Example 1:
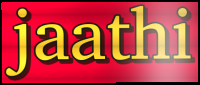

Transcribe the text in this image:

jaathi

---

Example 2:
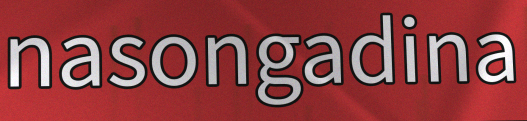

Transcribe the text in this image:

nasongadina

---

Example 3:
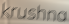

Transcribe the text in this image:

krushna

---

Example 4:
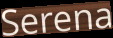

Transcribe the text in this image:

Serena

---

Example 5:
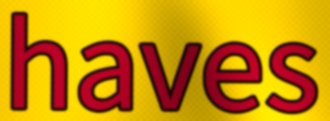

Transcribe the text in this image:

haves